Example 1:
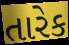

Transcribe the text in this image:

તારેક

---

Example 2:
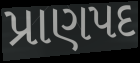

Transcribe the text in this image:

પ્રાણપદ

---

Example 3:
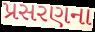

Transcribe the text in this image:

પ્રસરણના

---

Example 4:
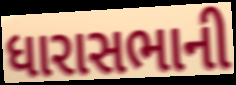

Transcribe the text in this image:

ધારાસભાની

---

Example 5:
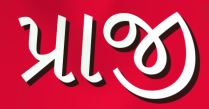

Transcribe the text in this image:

પ્રાજી